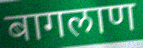
बागलाण